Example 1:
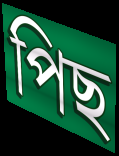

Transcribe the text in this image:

পিছ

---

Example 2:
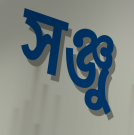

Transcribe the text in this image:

সঞ্জু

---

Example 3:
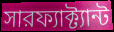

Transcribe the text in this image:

সারফ্যাক্ট্যান্ট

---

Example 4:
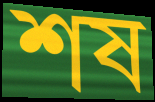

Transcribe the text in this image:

শষ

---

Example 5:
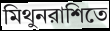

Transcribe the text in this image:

মিথুনরাশিতে